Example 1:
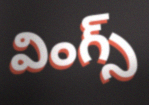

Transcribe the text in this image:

వింగ్స్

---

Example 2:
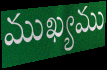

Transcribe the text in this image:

ముఖ్యము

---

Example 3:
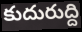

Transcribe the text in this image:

కుదురుద్ది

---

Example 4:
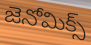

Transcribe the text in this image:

జెనోమిక్స్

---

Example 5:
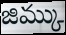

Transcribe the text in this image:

జిమ్కు